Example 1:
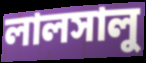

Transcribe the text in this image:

লালসালু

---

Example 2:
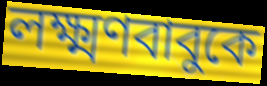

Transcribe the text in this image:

লক্ষ্মণবাবুকে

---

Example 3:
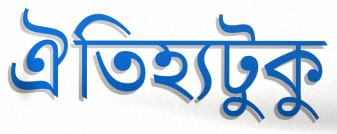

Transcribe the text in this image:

ঐতিহ্যটুকু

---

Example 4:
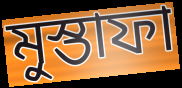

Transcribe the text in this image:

মুস্তাফা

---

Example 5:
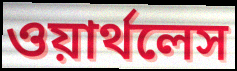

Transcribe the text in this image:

ওয়ার্থলেস